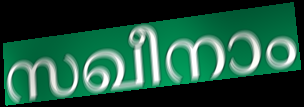
സഖീനാം